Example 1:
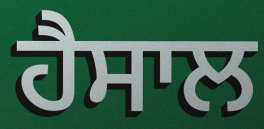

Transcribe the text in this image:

ਹੈਸਾਲ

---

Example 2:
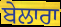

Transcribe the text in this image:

ਬੇਲਾਰਾ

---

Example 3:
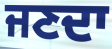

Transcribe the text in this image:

ਜਣਦਾ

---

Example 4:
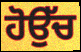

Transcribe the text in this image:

ਹੋਉੱਚ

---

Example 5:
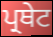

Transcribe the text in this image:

ਪ੍ਰਥੇਟ